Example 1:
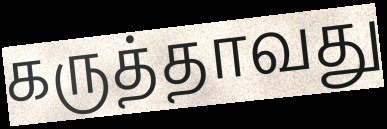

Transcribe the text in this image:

கருத்தாவது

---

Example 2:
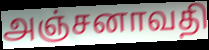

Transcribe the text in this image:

அஞ்சனாவதி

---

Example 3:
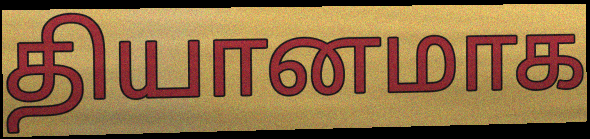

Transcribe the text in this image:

தியானமாக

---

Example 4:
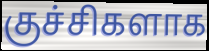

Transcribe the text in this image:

குச்சிகளாக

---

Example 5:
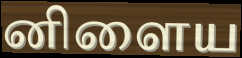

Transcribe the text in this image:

னிளைய